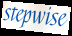
stepwise